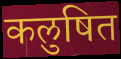
कलुषित